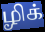
ழிக்